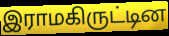
இராமகிருட்டின